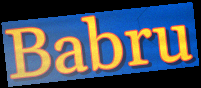
Babru